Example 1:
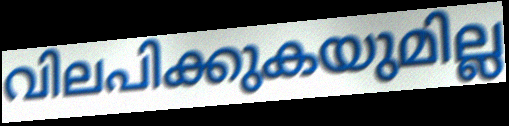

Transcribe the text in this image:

വിലപിക്കുകയുമില്ല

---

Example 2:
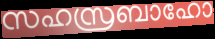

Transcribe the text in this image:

സഹസ്രബാഹോ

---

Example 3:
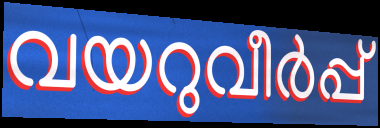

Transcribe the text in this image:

വയറുവീർപ്പ്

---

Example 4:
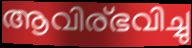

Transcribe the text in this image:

ആവിര്ഭവിച്ചു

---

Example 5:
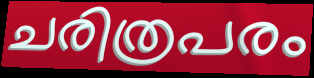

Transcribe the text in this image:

ചരിത്രപരം